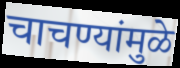
चाचण्यांमुळे